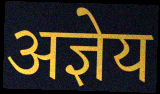
अज्ञेय